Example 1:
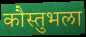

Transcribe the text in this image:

कौस्तुभला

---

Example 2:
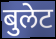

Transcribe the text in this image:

बुलेट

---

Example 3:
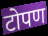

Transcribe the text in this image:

टोपण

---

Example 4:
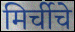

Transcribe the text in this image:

मिर्चीचे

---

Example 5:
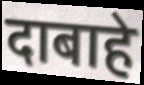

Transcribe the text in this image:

दाबाहे